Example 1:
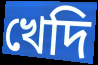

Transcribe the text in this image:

খেদি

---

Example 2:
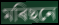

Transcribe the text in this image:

মৰিছনে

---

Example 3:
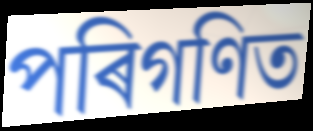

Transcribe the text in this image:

পৰিগণিত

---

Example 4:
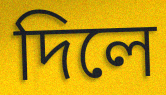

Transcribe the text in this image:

দিলে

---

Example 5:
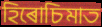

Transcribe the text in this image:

হিৰোচিমাত